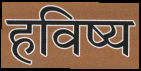
हविष्य